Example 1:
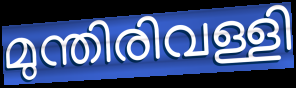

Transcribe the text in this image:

മുന്തിരിവള്ളി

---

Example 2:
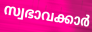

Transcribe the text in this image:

സ്വഭാവക്കാർ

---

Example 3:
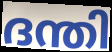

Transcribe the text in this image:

ദന്തി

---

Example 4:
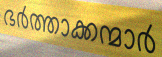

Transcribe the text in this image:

ഭർത്താക്കന്മാർ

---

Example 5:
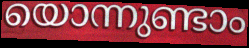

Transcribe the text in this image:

യൊന്നുണ്ടാം